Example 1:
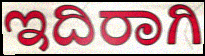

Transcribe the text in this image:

ಇದಿರಾಗಿ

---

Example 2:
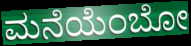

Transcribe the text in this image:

ಮನೆಯೆಂಬೋ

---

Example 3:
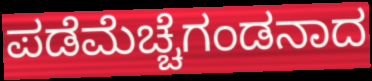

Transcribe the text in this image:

ಪಡೆಮೆಚ್ಚೆಗಂಡನಾದ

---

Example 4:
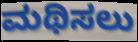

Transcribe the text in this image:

ಮಥಿಸಲು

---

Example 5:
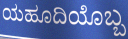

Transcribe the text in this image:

ಯಹೂದಿಯೊಬ್ಬ